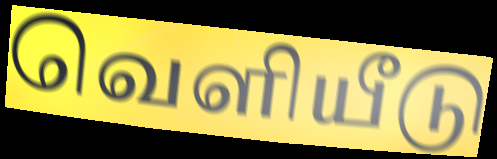
வெளியீடு